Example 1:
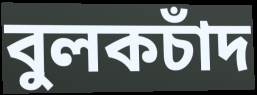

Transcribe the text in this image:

বুলকচাঁদ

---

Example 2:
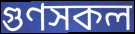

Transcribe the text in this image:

গুণসকল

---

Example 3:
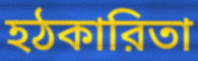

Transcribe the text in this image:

হঠকারিতা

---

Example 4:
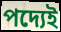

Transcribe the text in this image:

পদ্যেই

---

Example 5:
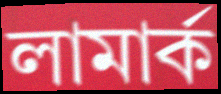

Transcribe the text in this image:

লামার্ক